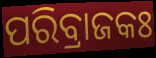
ପରିବ୍ରାଜକଃ